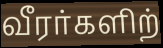
வீரர்களிற்